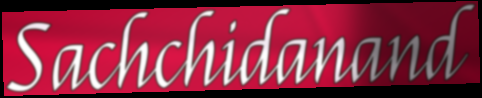
Sachchidanand